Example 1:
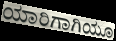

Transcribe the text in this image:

ಯಾರಿಗಾಗಿಯೂ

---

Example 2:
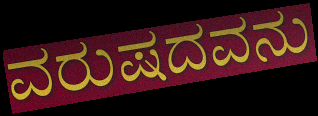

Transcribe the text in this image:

ವರುಷದವನು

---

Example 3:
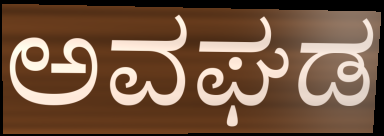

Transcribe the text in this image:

ಅವಘಡ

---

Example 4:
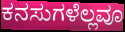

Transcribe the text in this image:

ಕನಸುಗಳೆಲ್ಲವೂ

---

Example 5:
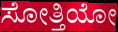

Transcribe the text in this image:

ಸೋತ್ತಿಯೋ